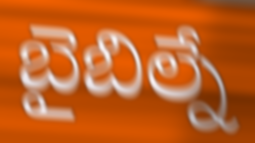
బైబిల్నే